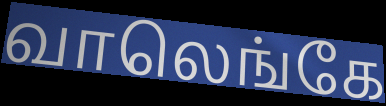
வாலெங்கே